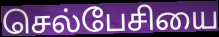
செல்பேசியை